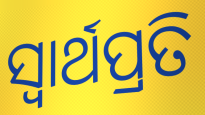
ସ୍ୱାର୍ଥପ୍ରତି